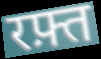
रफ़्त